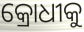
କ୍ରୋଧୀକୁ